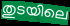
തുടയിലെ